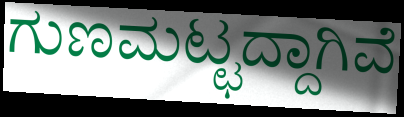
ಗುಣಮಟ್ಟದ್ದಾಗಿವೆ